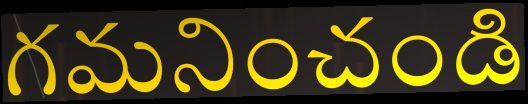
గమనించండి